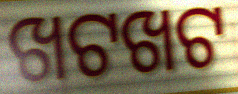
ଖଟଖଟ